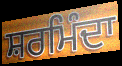
ਸ਼ਰਮਿੰਦਾ